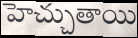
హెచ్చుతాయి